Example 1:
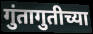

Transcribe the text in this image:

गुंतागुतीच्या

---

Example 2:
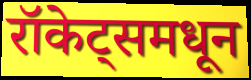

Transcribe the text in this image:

रॉकेट्समधून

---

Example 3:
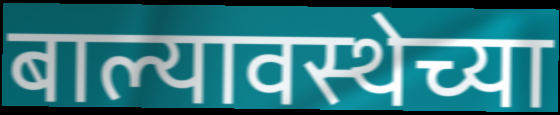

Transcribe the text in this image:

बाल्यावस्थेच्या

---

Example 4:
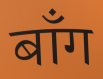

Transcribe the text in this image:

बाँग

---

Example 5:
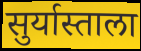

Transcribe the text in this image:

सुर्यास्ताला